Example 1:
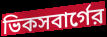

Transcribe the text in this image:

ভিকসবার্গের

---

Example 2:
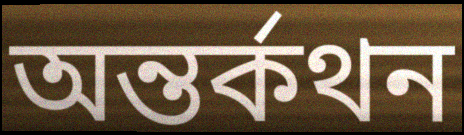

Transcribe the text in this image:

অন্তর্কথন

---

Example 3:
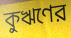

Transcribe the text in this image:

কুঋণের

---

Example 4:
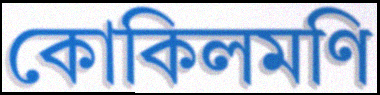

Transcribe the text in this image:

কোকিলমণি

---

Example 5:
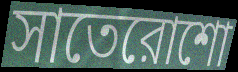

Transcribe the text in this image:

সাতেরোশো